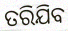
ତରିଯିବ